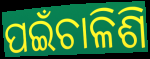
ପଇଁଚାଳିଶି